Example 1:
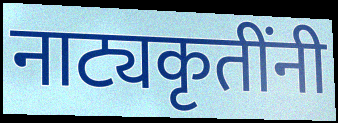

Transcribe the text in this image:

नाट्यकृतींनी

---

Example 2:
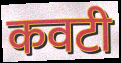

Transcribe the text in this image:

कवटी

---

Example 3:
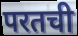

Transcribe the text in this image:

परतची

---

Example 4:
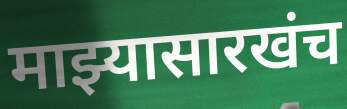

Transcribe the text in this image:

माझ्यासारखंच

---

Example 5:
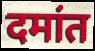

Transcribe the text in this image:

दमांत